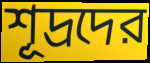
শূদ্রদের